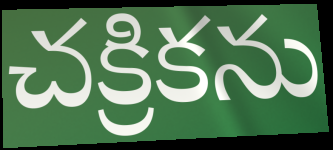
చక్రికను